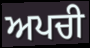
ਅਪਚੀ